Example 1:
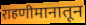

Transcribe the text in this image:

राहणीमानातून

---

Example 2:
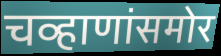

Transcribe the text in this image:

चव्हाणांसमोर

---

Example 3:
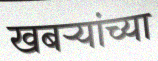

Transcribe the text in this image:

खबऱ्यांच्या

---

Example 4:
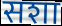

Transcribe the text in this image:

सशा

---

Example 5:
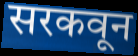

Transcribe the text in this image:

सरकवून